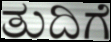
ತುದಿಗೆ